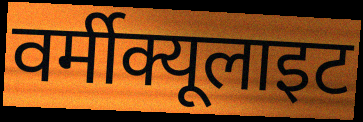
वर्मीक्यूलाइट